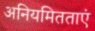
अनियमितताएं